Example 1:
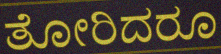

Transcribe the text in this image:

ತೋರಿದರೂ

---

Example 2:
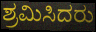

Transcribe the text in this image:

ಶ್ರಮಿಸಿದರು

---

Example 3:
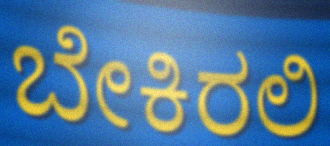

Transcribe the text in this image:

ಬೇಕಿರಲಿ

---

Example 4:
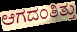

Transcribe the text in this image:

ಆಗದಂತಿತ್ತು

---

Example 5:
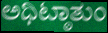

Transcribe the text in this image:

ಅಧಿಟ್ಠಾತುಂ